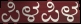
ಪಿಳಪಿಳ